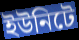
ইউনিটে